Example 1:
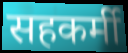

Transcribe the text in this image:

सहकर्मी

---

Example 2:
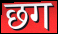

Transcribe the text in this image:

छग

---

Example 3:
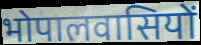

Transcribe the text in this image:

भोपालवासियों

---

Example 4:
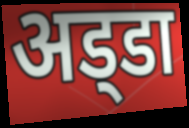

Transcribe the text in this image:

अड्‌डा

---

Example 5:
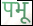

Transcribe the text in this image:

पभू